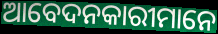
ଆବେଦନକାରୀମାନେ